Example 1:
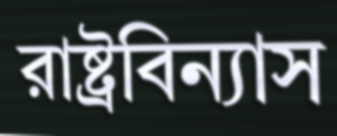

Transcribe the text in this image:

রাষ্ট্রবিন্যাস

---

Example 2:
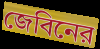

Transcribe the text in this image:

জেবিনের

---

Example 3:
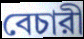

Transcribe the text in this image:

বেচারী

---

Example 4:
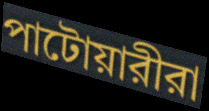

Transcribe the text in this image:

পাটোয়ারীরা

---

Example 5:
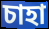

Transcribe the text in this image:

চাহা